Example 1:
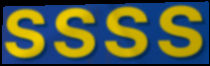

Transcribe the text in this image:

ssss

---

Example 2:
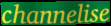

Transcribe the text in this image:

channelise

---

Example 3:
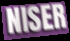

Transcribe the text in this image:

NISER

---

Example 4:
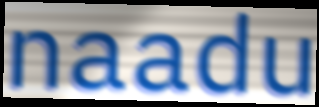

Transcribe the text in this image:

naadu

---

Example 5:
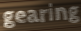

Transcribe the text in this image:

gearing